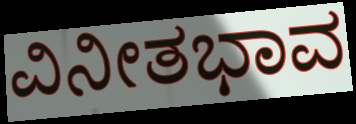
ವಿನೀತಭಾವ